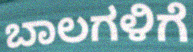
ಬಾಲಗಳಿಗೆ